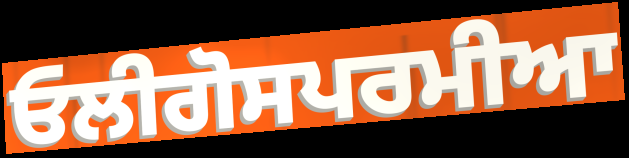
ਓਲੀਗੋਸਪਰਮੀਆ